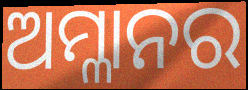
ଅମ୍ଳାନର